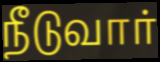
நீடுவார்